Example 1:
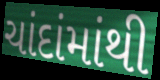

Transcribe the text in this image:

ચાંદાંમાંથી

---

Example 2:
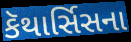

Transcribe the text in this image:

કૅથાર્સિસના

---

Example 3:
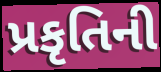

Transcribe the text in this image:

પ્રકૃતિની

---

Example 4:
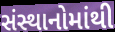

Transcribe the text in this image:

સંસ્થાનોમાંથી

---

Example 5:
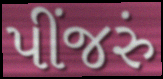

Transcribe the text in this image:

પીંજરું